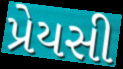
પ્રેયસી